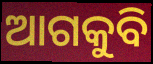
ଆଗକୁବି